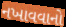
નખાવવાનો